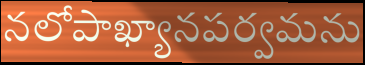
నలోపాఖ్యానపర్వమను